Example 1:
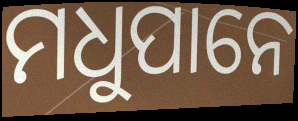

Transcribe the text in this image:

ମଧୁପାନେ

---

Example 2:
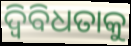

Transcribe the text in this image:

ଦ୍ୱିବିଧତାକୁ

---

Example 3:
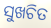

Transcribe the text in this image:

ସୁଖଚିତ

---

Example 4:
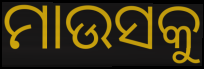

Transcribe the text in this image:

ମାଉସକୁ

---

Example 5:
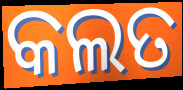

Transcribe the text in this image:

କଲତ